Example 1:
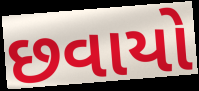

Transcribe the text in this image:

છવાયો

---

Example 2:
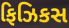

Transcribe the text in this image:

ફિઝિકસ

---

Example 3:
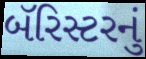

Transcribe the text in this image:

બૅરિસ્ટરનું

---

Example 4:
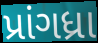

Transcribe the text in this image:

પ્રાંગધ્રા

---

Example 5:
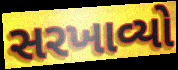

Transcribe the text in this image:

સરખાવ્યો